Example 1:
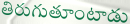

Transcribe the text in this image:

తిరుగుతూంటాడు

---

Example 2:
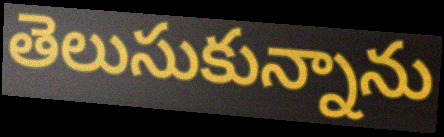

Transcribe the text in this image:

తెలుసుకున్నాను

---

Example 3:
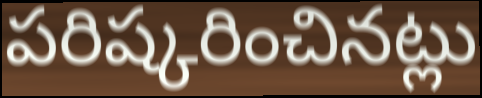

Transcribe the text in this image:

పరిష్కరించినట్లు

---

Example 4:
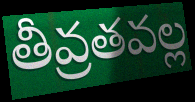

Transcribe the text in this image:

తీవ్రతవల్ల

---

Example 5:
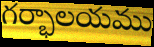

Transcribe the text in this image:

గర్భాలయము